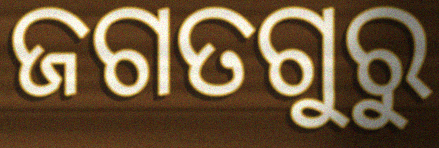
ଜଗତଗୁରୁ